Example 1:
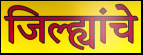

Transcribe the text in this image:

जिल्ह्यांचे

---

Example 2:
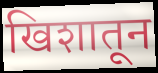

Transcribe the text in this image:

खिशातून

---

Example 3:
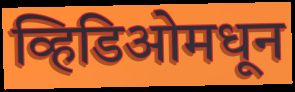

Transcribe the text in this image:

व्हिडिओमधून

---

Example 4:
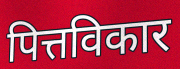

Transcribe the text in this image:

पित्तविकार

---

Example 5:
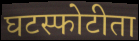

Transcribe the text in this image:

घटस्फोटीता